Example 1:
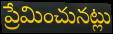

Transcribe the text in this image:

ప్రేమించునట్లు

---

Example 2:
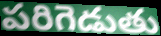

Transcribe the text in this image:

పరిగెడుతు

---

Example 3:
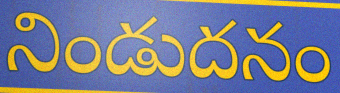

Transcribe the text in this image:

నిండుదనం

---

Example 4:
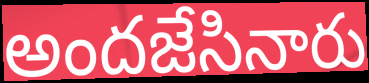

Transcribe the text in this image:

అందజేసినారు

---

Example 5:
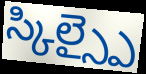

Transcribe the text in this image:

స్కిల్స్పై